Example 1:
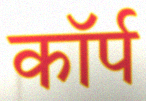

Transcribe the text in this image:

कॉर्प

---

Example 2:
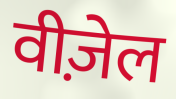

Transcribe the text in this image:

वीज़ेल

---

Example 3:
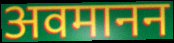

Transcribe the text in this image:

अवमानन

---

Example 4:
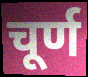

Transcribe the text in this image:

चूर्ण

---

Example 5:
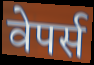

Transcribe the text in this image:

वेपर्स